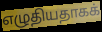
எழுதியதாகக்